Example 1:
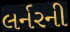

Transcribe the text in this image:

લર્નરની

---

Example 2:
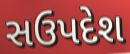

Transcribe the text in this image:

સઉપદેશ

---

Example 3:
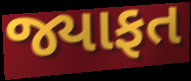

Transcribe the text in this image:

જ્યાફત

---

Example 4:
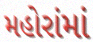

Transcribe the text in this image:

મહોરાંમાં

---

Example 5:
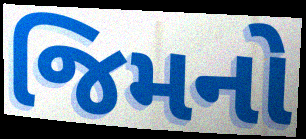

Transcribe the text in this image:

જિમનો